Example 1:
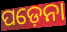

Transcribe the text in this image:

ପଡ଼େନା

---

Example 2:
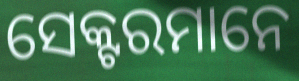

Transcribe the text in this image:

ସେକ୍ଟରମାନେ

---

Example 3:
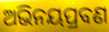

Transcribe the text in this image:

ଅଭିନୟପ୍ରବଣ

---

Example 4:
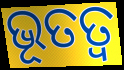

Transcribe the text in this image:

ଭୂତତ୍ୱ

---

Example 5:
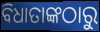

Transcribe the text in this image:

ବିଧାତାଙ୍କଠାରୁ